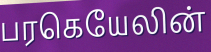
பரகெயேலின்